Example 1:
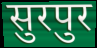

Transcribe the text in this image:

सुरपुर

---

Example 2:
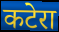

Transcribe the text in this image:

कटेरा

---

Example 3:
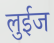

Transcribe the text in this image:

लुईज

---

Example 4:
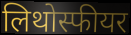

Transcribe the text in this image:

लिथोस्फीयर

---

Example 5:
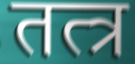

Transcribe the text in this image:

तत्त्र